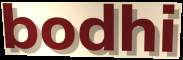
bodhi